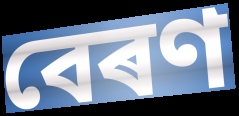
বেৰণ